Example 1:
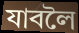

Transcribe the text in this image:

যাবলৈ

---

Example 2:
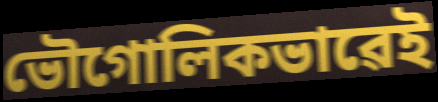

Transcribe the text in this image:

ভৌগোলিকভাৱেই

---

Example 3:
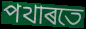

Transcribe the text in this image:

পথাৰতে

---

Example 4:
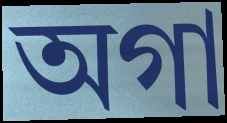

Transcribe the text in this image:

অগা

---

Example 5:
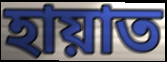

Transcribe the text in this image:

হায়াত